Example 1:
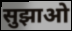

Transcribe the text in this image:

सुझाओ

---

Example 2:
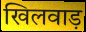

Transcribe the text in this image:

खिलवाड़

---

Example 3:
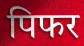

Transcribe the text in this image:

पिफर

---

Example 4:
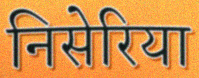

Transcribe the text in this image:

निसेरिया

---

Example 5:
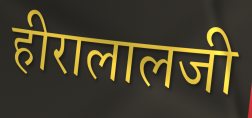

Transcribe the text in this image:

हीरालालजी